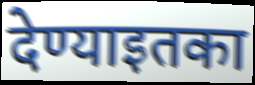
देण्याइतका